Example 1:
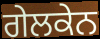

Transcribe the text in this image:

ਗੇਲਕੇਨ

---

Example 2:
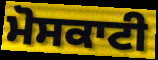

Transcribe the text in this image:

ਮੋਸਕਾਟੀ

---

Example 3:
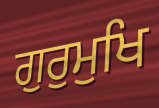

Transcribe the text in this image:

ਗੁਰੁਮੁਖਿ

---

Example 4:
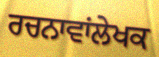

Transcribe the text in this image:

ਰਚਨਾਵਾਂਲੇਖਕ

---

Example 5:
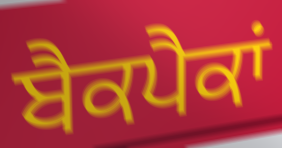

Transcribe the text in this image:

ਬੈਕਪੈਕਾਂ